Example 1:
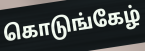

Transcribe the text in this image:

கொடுங்கேழ்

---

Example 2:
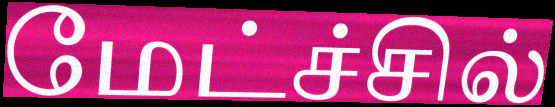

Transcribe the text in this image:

மேட்ச்சில்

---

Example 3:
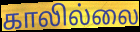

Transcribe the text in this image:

காலில்லை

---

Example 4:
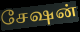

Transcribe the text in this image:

சேஷன்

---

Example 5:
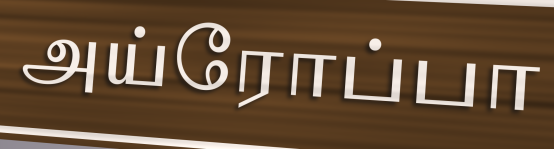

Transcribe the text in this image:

அய்ரோப்பா